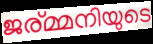
ജര്മ്മനിയുടെ